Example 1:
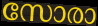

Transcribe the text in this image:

സോരാ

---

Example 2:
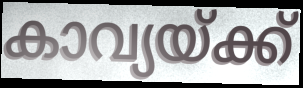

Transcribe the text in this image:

കാവ്യയ്ക്ക്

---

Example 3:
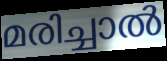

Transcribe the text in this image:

മരിച്ചാൽ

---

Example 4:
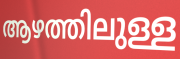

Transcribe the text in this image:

ആഴത്തിലുള്ള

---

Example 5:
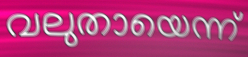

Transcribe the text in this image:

വലുതായെന്ന്